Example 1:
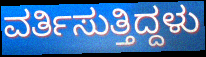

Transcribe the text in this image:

ವರ್ತಿಸುತ್ತಿದ್ದಳು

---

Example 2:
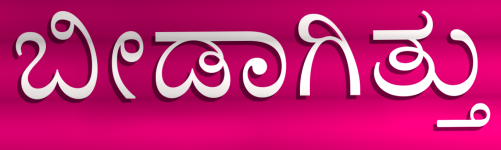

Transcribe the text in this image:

ಬೀಡಾಗಿತ್ತು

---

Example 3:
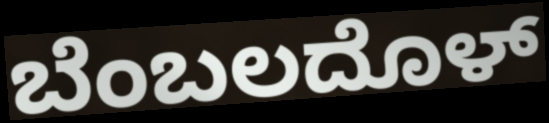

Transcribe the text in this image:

ಬೆಂಬಲದೊಳ್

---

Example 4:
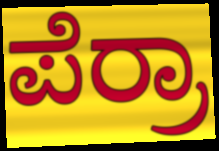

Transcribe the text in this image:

ಪೆರ್ರಾ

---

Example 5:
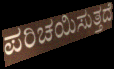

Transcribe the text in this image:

ಪರಿಚಯಿಸುತ್ತದೆ